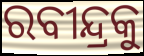
ରବୀନ୍ଦ୍ରକୁ